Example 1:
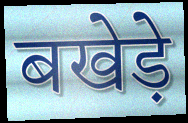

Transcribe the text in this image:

बखेड़े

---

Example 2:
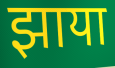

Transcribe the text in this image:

झाया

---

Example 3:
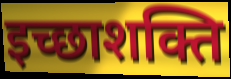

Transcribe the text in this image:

इच्छाशक्ति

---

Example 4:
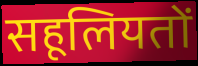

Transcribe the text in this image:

सहूलियतों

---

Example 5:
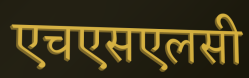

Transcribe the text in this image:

एचएसएलसी